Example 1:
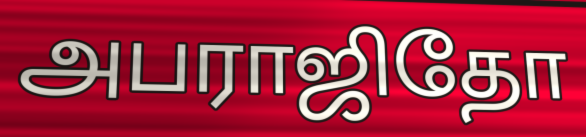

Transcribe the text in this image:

அபராஜிதோ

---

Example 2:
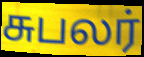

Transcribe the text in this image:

சுபலர்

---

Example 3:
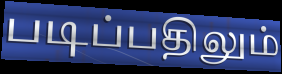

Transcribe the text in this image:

படிப்பதிலும்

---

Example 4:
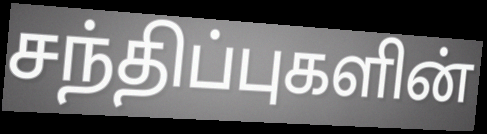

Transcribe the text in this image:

சந்திப்புகளின்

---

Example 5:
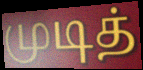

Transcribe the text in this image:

முடித்